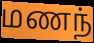
மணந்